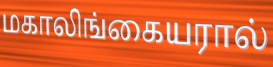
மகாலிங்கையரால்